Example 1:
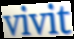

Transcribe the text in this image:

vivit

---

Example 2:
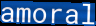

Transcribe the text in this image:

amoral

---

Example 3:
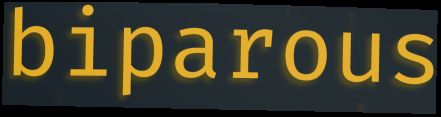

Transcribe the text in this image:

biparous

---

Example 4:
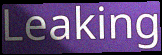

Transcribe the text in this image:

Leaking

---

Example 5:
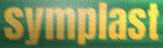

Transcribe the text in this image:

symplast